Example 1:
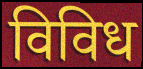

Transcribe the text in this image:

विविध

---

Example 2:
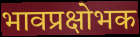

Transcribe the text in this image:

भावप्रक्षोभक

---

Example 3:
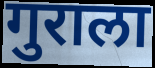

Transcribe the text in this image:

गुराला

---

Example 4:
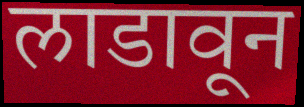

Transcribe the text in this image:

लाडावून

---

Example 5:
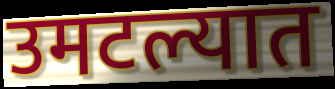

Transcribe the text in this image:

उमटल्यात